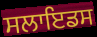
ਸਲਾਇਡਸ